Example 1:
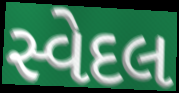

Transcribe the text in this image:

સ્વેદલ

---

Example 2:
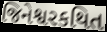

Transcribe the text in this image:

જિનેશ્વરકથિત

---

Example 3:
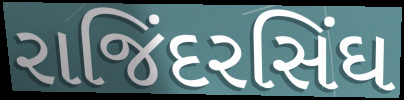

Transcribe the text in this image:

રાજિંદરસિંઘ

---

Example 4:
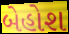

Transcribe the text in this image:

બેહોશ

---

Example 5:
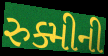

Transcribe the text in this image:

રુક્મીની